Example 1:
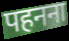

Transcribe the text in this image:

पहनना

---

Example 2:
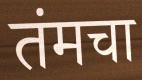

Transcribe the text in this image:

तंमचा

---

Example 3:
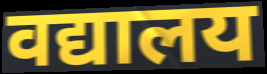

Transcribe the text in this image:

वद्यालय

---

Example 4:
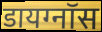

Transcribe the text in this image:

डायग्नॉस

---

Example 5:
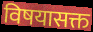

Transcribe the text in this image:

विषयासक्त